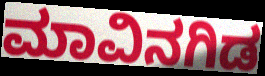
ಮಾವಿನಗಿಡ